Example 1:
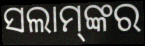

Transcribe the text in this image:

ସଲାମ୍‌ଙ୍କର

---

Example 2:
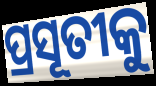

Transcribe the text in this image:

ପ୍ରସୂତୀକୁ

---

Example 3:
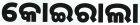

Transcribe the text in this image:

କୋଇରାଲା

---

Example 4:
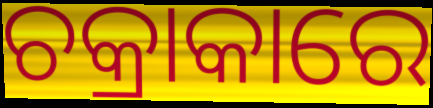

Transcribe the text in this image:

ଚକ୍ରାକାରେ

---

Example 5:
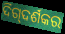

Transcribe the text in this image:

ଦିଗ୍‌ଦର୍ଶକର